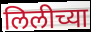
लिलीच्या